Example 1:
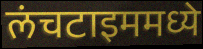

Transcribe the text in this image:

लंचटाइममध्ये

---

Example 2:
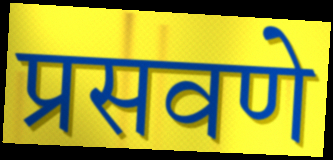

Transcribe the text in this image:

प्रसवणे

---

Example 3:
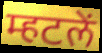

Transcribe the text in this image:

म्हटलें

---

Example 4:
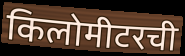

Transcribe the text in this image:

किलोमीटरची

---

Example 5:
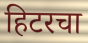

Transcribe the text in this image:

हिटरचा